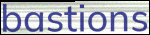
bastions